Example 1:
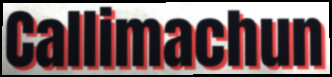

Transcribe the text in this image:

Callimachun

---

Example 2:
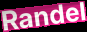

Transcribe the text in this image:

Randel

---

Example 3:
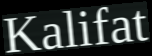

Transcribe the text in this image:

Kalifat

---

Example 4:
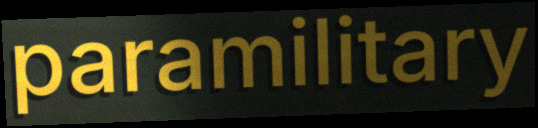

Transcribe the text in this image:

paramilitary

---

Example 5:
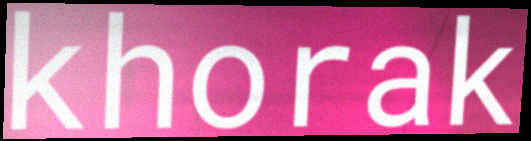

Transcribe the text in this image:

khorak